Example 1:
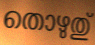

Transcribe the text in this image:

തൊഴുതു്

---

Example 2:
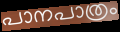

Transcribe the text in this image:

പാനപാത്രം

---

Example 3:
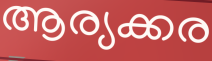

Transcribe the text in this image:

ആര്യക്കര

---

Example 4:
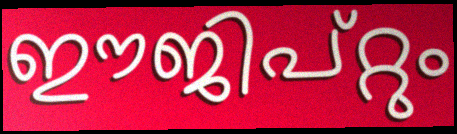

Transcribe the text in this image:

ഈജിപ്റ്റും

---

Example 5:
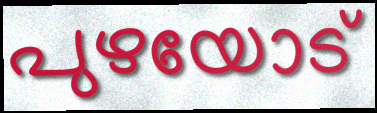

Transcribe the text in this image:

പുഴയോട്